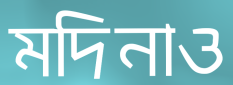
মদিনাও